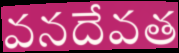
వనదేవత